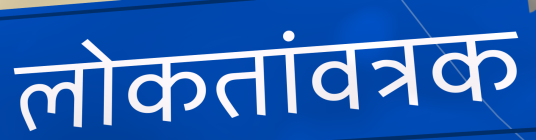
लोकतांवत्रक